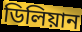
ডিলিয়ান